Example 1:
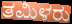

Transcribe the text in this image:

ತಮಿಳರು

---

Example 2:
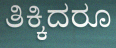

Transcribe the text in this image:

ತಿಕ್ಕಿದರೂ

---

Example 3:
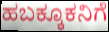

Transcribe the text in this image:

ಹಬಕ್ಕೂಕನಿಗೆ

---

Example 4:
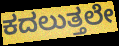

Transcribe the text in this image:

ಕದಲುತ್ತಲೇ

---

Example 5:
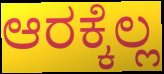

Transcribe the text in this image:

ಆರಕ್ಕೆಲ್ಲ